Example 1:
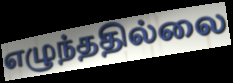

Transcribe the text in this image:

எழுந்ததில்லை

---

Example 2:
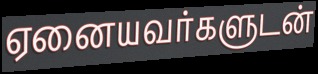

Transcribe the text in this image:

ஏனையவர்களுடன்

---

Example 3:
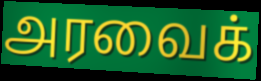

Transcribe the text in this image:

அரவைக்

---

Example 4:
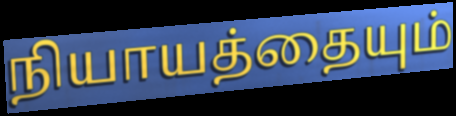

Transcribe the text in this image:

நியாயத்தையும்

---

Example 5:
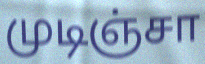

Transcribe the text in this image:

முடிஞ்சா